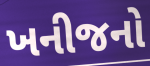
ખનીજનો